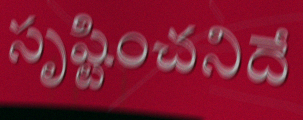
సృష్టించనిదే